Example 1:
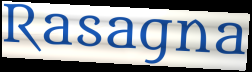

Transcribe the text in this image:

Rasagna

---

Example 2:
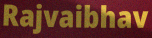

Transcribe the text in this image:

Rajvaibhav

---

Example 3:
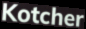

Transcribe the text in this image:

Kotcher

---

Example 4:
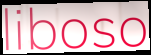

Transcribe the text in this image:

liboso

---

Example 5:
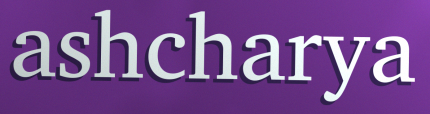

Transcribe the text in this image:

ashcharya